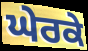
ਘੇਰਕੇ